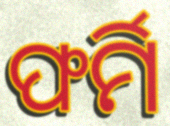
ଫର୍ମି